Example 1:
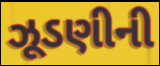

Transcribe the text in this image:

ઝૂડણીની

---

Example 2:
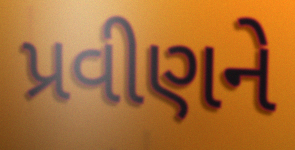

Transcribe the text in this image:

પ્રવીણને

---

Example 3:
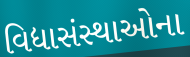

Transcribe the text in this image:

વિદ્યાસંસ્થાઓના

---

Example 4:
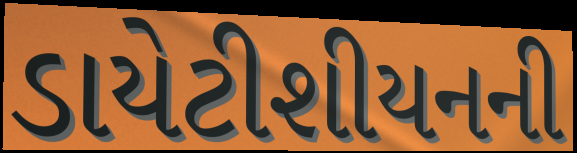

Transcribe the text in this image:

ડાયેટીશીયનની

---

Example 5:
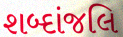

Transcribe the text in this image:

શબ્દાંજલિ